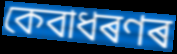
কেবাধৰণৰ